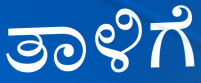
ತಾಳಿಗೆ